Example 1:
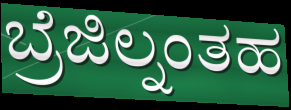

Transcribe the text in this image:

ಬ್ರೆಜಿಲ್ನಂತಹ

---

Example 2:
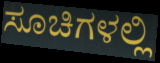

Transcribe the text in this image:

ಸೂಚಿಗಳಲ್ಲಿ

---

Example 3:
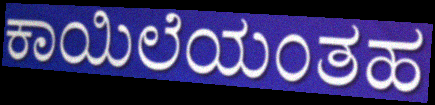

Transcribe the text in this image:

ಕಾಯಿಲೆಯಂತಹ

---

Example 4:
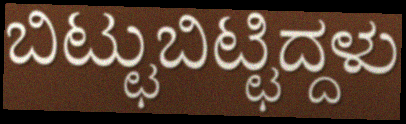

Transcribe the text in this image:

ಬಿಟ್ಟುಬಿಟ್ಟಿದ್ದಳು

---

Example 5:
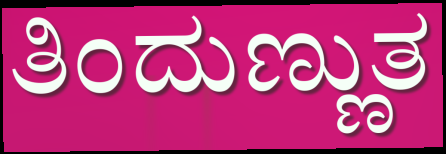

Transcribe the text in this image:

ತಿಂದುಣ್ಣುತ